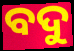
ବଦୁ